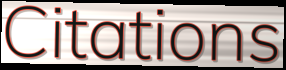
Citations